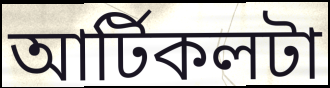
আর্টিকলটা